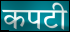
कपटी